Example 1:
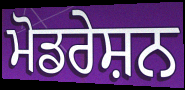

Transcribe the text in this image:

ਮੋਡਰੇਸ਼ਨ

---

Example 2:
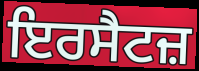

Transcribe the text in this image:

ਇਰਸੈਟਜ਼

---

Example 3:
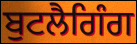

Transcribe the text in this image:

ਬੁਟਲੈਗਿੰਗ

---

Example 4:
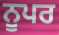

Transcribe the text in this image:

ਨੂਪਰ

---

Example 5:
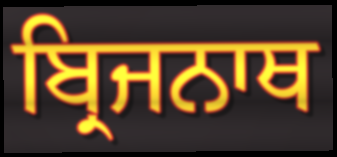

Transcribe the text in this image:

ਬ੍ਰਿਜਨਾਥ